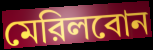
মেরিলবোন